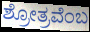
ಶ್ರೋತ್ರವೆಂಬ